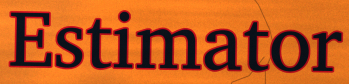
Estimator